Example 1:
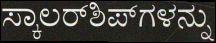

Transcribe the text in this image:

ಸ್ಕಾಲರ್‌ಶಿಪ್‌ಗಳನ್ನು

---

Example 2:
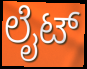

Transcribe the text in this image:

ಲೈಟ್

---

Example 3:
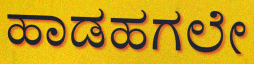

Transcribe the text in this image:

ಹಾಡಹಗಲೇ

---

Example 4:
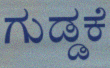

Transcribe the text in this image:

ಗುಡ್ಡಕೆ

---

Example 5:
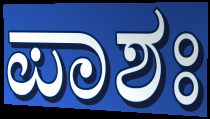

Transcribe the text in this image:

ಪಾಶಃ